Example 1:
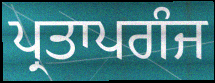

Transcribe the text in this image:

ਪ੍ਰਤਾਪਗੰਜ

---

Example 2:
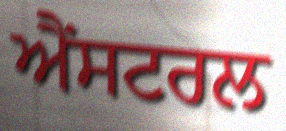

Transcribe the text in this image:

ਐਂਸਟਰਲ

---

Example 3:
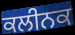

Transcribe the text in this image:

ਕਲੀਨਕ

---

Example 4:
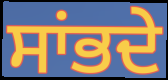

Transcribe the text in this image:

ਸਾਂਭਦੇ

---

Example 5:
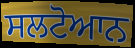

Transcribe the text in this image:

ਸਲਟੋਆਨ